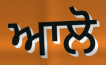
ਆਲੋ